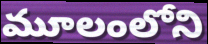
మూలంలోని